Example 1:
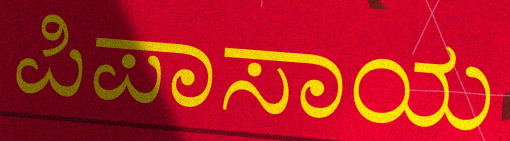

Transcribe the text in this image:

ಪಿಪಾಸಾಯ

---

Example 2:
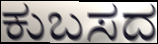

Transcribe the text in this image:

ಕುಬಸದ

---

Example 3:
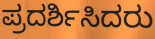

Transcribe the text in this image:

ಪ್ರದರ್ಶಿಸಿದರು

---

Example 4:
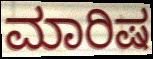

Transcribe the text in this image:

ಮಾರಿಷ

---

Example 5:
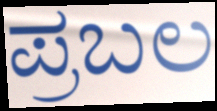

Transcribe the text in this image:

ಪ್ರಬಲ